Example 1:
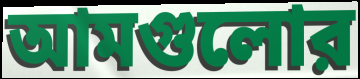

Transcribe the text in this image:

আমগুলোর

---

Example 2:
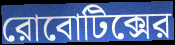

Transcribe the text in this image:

রোবোটিক্সের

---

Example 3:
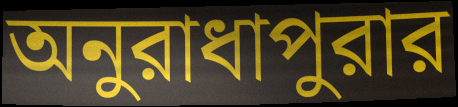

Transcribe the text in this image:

অনুরাধাপুরার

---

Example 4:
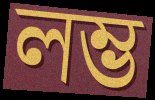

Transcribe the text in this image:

লম্ভ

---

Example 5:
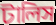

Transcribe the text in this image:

টালিস